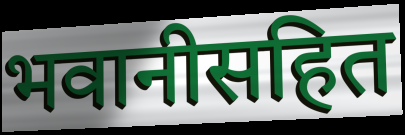
भवानीसहित